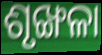
ଶୃଙ୍ଖଳା